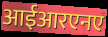
आईआरएनए